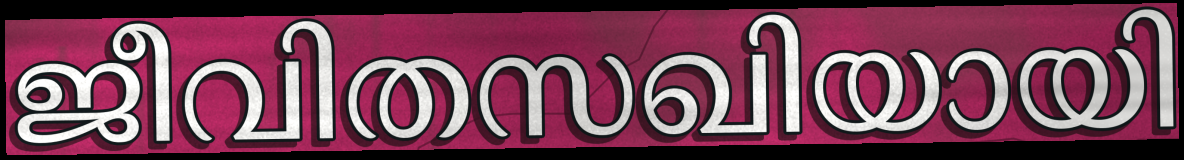
ജീവിതസഖിയായി